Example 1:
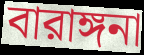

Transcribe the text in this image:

বারাঙ্গনা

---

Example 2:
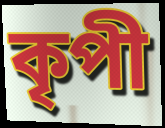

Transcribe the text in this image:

কৃপী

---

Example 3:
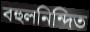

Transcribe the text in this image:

বহুলনিন্দিত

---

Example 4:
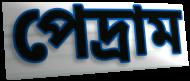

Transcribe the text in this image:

পেদ্রাম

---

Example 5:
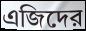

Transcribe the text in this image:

এজিদের